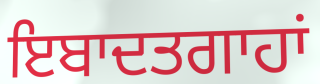
ਇਬਾਦਤਗਾਹਾਂ